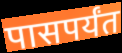
पासपर्यंत